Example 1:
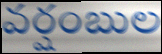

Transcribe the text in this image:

వర్షంబుల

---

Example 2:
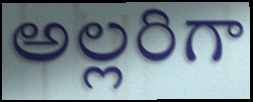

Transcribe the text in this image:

అల్లరిగా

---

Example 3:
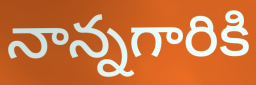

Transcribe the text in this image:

నాన్నగారికి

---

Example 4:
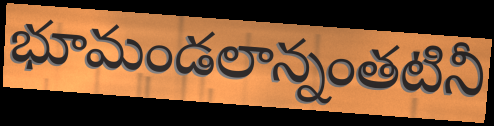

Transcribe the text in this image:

భూమండలాన్నంతటినీ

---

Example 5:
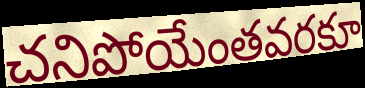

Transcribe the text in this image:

చనిపోయేంతవరకూ